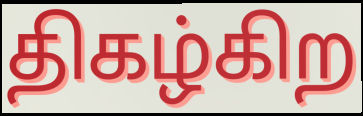
திகழ்கிற